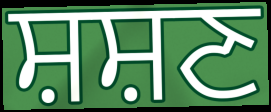
ਸ਼ਸ਼ਣ